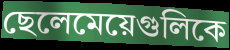
ছেলেমেয়েগুলিকে